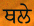
ਥਲੇ